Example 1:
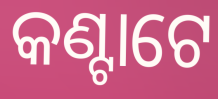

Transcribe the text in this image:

କଣ୍ଟାଟେ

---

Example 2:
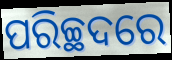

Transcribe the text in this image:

ପରିଚ୍ଛଦରେ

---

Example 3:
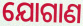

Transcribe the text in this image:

ଯୋଗାଣ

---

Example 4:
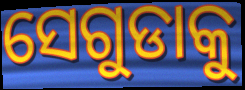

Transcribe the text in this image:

ସେଗୁଡାକୁ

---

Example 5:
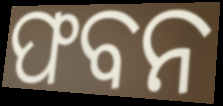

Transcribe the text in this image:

ଫବନ